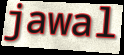
jawal